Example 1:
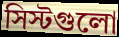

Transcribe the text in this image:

সিস্টগুলো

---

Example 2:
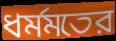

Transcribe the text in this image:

ধর্মমতের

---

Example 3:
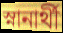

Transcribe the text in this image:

স্নানার্থী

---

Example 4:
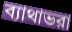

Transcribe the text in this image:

ব্যাথাভরা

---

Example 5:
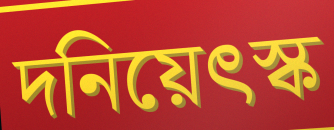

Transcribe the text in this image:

দনিয়েৎস্ক